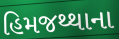
હિમજથ્થાના